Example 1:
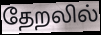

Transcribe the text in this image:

தேறலில்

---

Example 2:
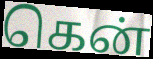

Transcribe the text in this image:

கென்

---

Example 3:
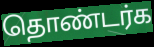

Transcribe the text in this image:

தொண்டர்க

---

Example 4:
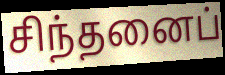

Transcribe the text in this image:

சிந்தனைப்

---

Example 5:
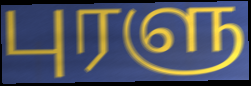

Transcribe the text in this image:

புரளு